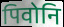
पिवोनि